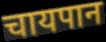
चायपान